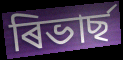
ৰিভাৰ্ছ